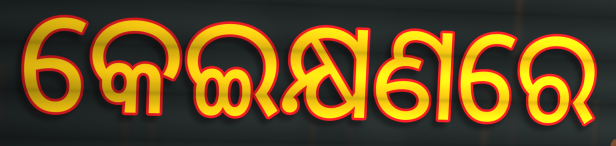
କେଇକ୍ଷଣରେ